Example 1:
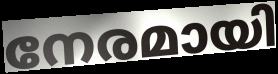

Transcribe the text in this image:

നേരമായി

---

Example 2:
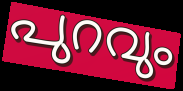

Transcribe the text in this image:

പുറവും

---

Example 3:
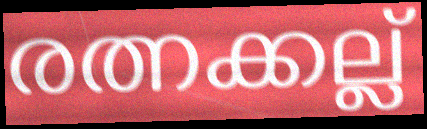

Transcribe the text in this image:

രത്നക്കല്ല്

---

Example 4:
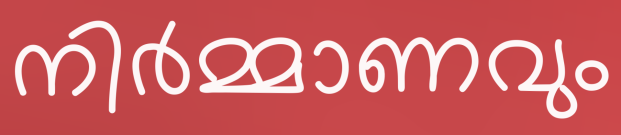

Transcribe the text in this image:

നിർമ്മാണവും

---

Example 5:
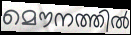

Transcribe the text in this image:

മൌനത്തിൽ